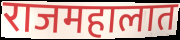
राजमहालात